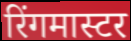
रिंगमास्टर